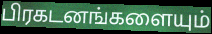
பிரகடனங்களையும்